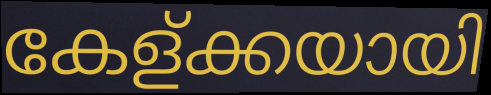
കേള്ക്കയായി